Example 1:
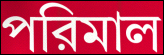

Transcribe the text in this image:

পরিমাল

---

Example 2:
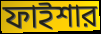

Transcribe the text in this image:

ফাইশার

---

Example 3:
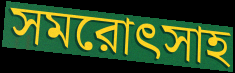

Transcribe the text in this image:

সমরোৎসাহ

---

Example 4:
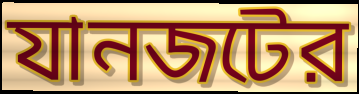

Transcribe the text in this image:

যানজটের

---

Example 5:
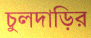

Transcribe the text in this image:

চুলদাড়ির